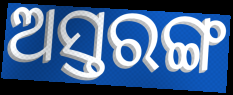
ଅସ୍ତରଙ୍ଗ